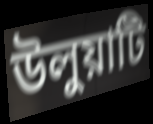
উলুয়াটি